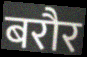
बरौर